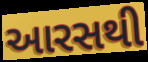
આરસથી